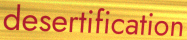
desertification